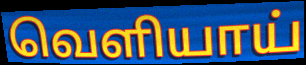
வெளியாய்